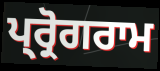
ਪ੍ਰ੍ਰੋਗਰਾਮ